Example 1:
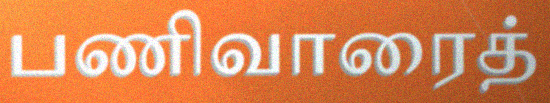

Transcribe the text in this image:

பணிவாரைத்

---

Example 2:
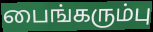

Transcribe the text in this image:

பைங்கரும்பு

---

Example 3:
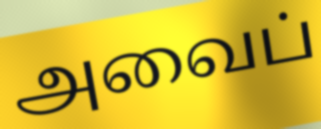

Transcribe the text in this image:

அவைப்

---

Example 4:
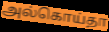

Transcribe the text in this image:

அல்கொய்தா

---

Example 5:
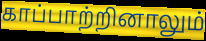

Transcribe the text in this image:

காப்பாற்றினாலும்